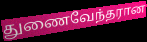
துணைவேந்தரான